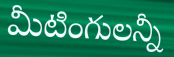
మీటింగులన్నీ